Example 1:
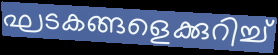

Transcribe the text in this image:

ഘടകങ്ങളെക്കുറിച്ച്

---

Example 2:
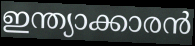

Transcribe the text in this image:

ഇന്ത്യാക്കാരൻ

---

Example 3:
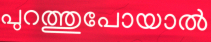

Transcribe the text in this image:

പുറത്തുപോയാൽ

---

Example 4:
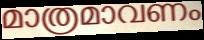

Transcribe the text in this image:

മാത്രമാവണം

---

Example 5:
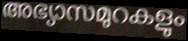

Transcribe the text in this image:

അഭ്യാസമുറകളും